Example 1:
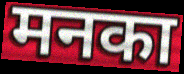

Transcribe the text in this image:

मनका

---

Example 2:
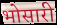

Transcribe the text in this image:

भोसारी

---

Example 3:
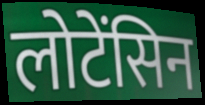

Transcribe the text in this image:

लोटेंसिन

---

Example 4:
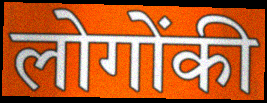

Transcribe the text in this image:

लोगोंकी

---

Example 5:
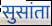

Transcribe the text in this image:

सुसांता